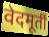
वेदमूर्ती